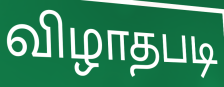
விழாதபடி